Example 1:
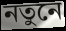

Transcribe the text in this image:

নতুনে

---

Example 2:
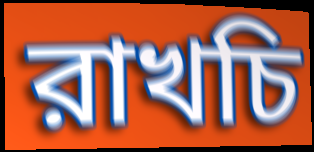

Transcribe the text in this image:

রাখচি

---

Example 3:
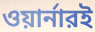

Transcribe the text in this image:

ওয়ার্নারই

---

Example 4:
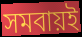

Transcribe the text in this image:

সমবায়ই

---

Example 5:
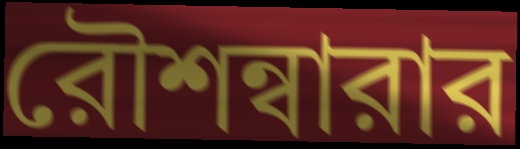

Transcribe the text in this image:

রৌশন্বারার